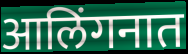
आलिंगनात